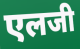
एलजी